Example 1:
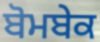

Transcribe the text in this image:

ਬੋਮਬੇਕ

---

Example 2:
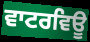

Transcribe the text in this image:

ਵਾਟਰਵਿਊ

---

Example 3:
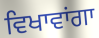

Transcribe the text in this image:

ਵਿਖਾਵਾਂਗਾ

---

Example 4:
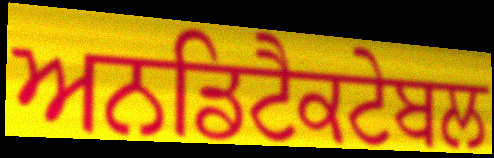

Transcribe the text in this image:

ਅਨਡਿਟੈਕਟੇਬਲ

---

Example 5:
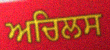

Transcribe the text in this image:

ਅਚਿਲਸ